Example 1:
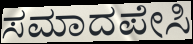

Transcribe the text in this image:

ಸಮಾದಪೇಸಿ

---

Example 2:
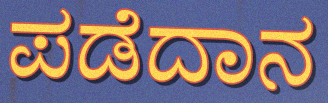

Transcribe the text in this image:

ಪಡೆದಾನ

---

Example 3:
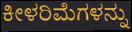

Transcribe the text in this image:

ಕೀಳರಿಮೆಗಳನ್ನು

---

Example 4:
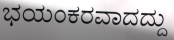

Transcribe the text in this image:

ಭಯಂಕರವಾದದ್ದು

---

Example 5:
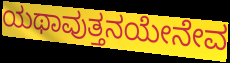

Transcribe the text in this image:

ಯಥಾವುತ್ತನಯೇನೇವ